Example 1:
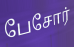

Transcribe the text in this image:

பேசோர்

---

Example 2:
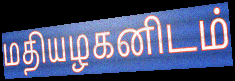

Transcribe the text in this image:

மதியழகனிடம்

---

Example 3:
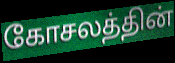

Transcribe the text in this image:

கோசலத்தின்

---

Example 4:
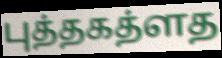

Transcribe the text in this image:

புத்தகத்ளத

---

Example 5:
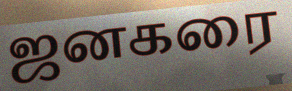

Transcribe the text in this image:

ஜனகரை